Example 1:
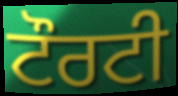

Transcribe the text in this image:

ਟੌਰਟੀ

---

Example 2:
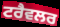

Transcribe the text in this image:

ਟਰੈਵਲਰ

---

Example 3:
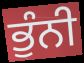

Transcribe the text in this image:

ਭੁੰਨੀ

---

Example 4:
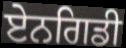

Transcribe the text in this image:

ਏਨਗਿਡੀ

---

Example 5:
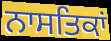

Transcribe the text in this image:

ਨਾਸਤਿਕਾਂ